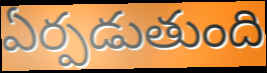
ఏర్పడుతుంది